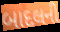
બાદલની